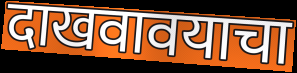
दाखवावयाचा